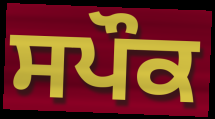
ਸਪੌਕ